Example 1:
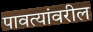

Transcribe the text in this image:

पावत्यांवरील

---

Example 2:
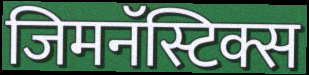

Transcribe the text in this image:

जिमनॅस्टिक्स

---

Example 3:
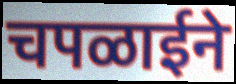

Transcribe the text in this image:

चपळाईने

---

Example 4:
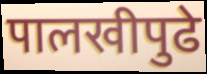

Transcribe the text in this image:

पालखीपुढे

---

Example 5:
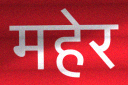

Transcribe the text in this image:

महेर